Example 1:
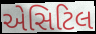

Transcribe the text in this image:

એસિટિલ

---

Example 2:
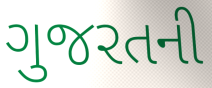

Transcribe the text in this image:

ગુજરતની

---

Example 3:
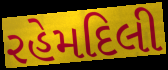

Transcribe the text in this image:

રહેમદિલી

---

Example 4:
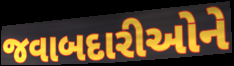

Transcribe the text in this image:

જવાબદારીઓને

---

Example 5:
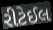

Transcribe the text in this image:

રીટેઈલ